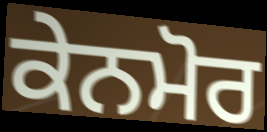
ਕੇਨਮੋਰ